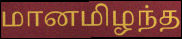
மானமிழந்த